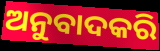
ଅନୁବାଦକରି